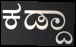
ಕಡ್ದಾ